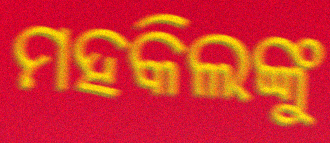
ମହକିଲଙ୍କୁ